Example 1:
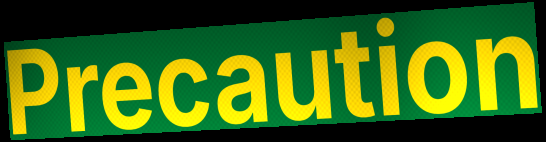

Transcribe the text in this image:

Precaution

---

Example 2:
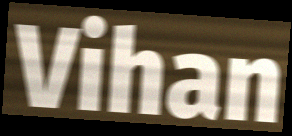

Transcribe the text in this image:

Vihan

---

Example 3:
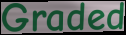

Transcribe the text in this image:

Graded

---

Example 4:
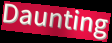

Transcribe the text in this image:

Daunting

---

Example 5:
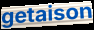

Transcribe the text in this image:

getaison